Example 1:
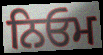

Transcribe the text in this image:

ਨਿਓਮ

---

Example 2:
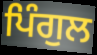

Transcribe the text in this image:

ਪਿੰਗੁਲ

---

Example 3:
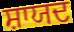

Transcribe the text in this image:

ਸ਼ਾਯਦ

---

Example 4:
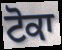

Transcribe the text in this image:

ਟੋਕਾ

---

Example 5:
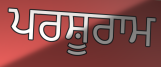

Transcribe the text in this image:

ਪਰਸ਼ੂਰਾਮ